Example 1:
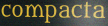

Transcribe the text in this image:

compacta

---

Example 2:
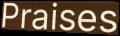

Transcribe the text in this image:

Praises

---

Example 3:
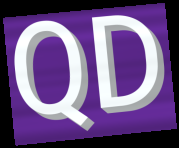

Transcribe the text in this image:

QD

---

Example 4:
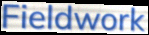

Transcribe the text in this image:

Fieldwork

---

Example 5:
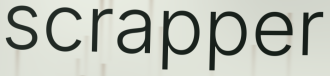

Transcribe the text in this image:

scrapper